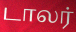
டாலர்